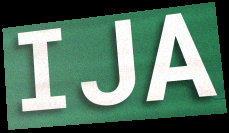
IJA